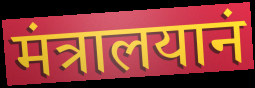
मंत्रालयानं